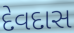
દેવદાસ